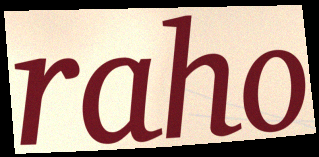
raho